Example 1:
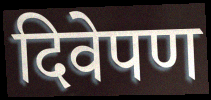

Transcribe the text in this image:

दिवेपण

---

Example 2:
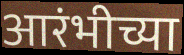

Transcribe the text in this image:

आरंभीच्या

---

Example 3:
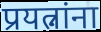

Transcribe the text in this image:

प्रयत्नांना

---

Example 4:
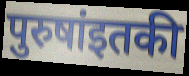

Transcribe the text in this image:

पुरुषांइतकी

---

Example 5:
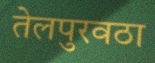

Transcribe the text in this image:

तेलपुरवठा